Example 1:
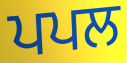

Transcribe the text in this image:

ਪਪਲ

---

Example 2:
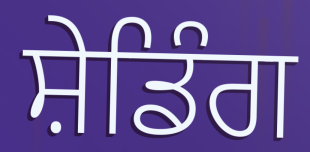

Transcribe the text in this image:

ਸ਼ੇਡਿੰਗ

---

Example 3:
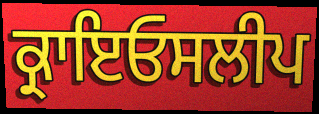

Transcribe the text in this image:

ਕ੍ਰਾਇਓਸਲੀਪ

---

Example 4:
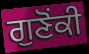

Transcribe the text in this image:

ਗੁਣੋਂਕੀ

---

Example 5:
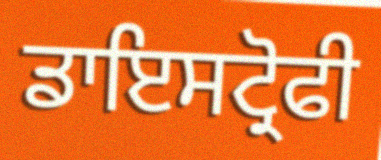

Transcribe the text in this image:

ਡਾਇਸਟ੍ਰੋਫੀ